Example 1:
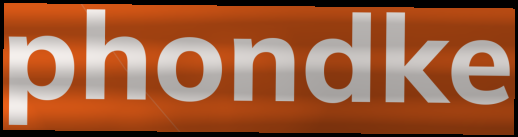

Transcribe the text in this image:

phondke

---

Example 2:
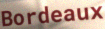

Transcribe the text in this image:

Bordeaux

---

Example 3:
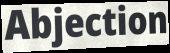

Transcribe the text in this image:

Abjection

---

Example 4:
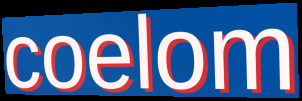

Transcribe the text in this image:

coelom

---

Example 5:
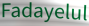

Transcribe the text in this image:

Fadayelul